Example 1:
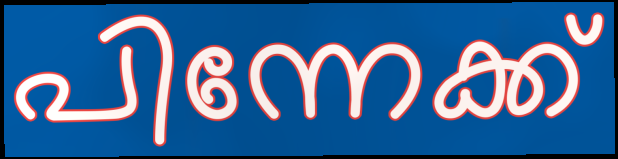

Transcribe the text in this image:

പിന്നേക്ക്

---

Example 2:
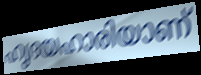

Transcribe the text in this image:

ഹൃദയഹാരിയാണ്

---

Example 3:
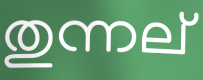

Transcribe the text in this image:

തുന്നല്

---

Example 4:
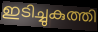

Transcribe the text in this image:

ഇടിച്ചുകുത്തി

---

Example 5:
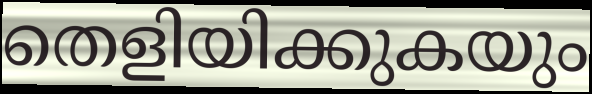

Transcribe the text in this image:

തെളിയിക്കുകയും